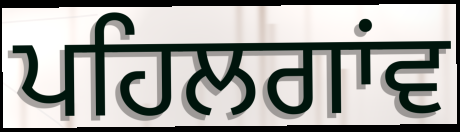
ਪਹਿਲਗਾਂਵ